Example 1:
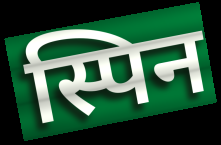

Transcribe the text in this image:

स्पिन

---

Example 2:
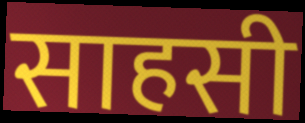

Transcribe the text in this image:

साहसी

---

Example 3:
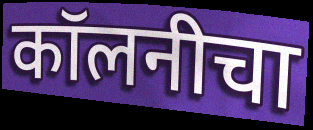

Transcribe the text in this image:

कॉलनीचा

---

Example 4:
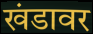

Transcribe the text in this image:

खंडावर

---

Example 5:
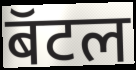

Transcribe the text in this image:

बॅटल